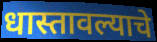
धास्तावल्याचे